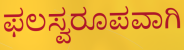
ಫಲಸ್ವರೂಪವಾಗಿ